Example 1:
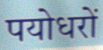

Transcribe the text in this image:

पयोधरों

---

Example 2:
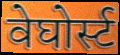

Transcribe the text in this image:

वेघोर्स्ट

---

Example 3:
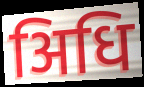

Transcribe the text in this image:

अिधि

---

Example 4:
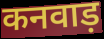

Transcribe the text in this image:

कनवाड़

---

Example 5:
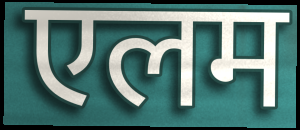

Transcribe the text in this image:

एलम